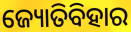
ଜ୍ୟୋତିବିହାର